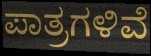
ಪಾತ್ರಗಳಿವೆ